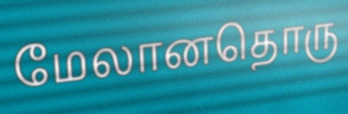
மேலானதொரு